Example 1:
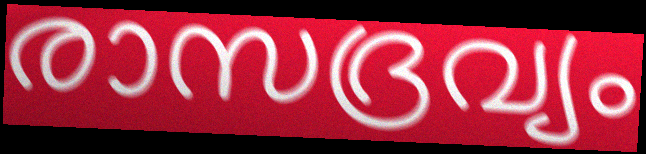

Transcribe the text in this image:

രാസദ്രവ്യം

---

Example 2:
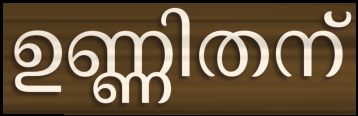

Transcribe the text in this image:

ഉണ്ണിതന്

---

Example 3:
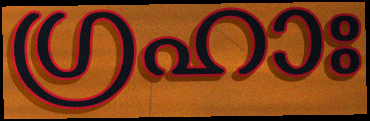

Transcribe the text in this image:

ഗ്രഹാഃ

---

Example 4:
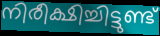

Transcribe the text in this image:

നിരീക്ഷിച്ചിട്ടുണ്ട്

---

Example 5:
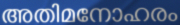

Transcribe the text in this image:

അതിമനോഹരം